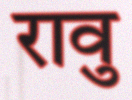
रावु